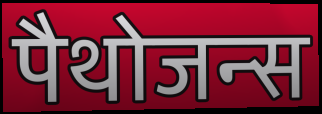
पैथोजन्स